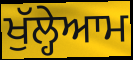
ਖੁੱਲ੍ਹੇਆਮ